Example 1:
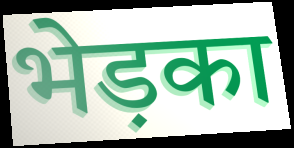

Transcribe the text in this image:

भेड़का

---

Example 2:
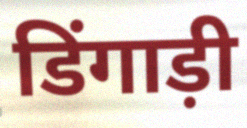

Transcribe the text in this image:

डिंगाड़ी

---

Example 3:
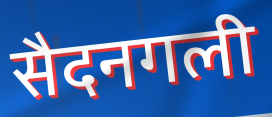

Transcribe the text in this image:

सैदनगली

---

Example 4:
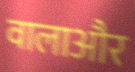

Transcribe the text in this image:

वालाऔर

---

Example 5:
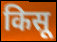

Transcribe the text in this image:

किसू